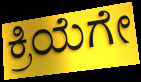
ಕ್ರಿಯೆಗೇ